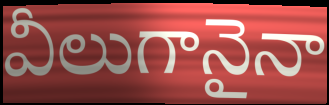
వీలుగానైనా